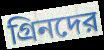
গ্রিনদের